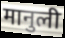
मानुली